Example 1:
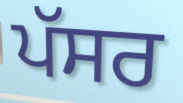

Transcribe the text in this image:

ਪੱਸਰ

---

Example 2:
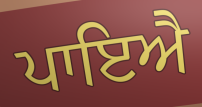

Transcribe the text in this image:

ਪਾਇਐ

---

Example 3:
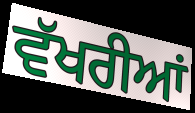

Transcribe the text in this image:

ਵੱਖਰੀਆਂ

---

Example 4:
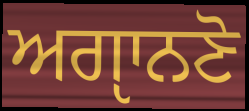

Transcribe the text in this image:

ਅਗੵਾਨਣੋ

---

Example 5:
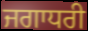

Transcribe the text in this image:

ਜਗਾਧਰੀ